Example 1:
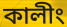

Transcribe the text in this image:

কালীং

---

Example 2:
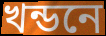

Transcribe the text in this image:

খন্ডনে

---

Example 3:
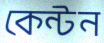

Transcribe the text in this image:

কেন্টন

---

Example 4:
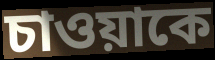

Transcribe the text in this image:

চাওয়াকে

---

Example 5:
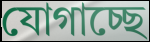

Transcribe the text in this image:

যোগাচ্ছে